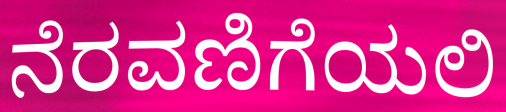
ನೆರವಣಿಗೆಯಲಿ